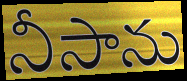
నీసాను